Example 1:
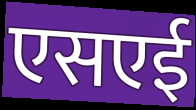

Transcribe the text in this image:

एसएई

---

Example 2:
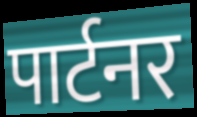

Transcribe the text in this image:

पार्टनर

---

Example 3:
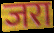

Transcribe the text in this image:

जरा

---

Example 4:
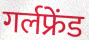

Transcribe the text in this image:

गर्लफ्रेंड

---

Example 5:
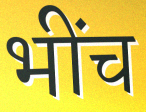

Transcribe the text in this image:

भींच